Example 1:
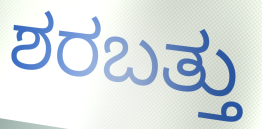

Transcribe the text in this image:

ಶರಬತ್ತು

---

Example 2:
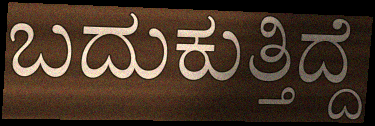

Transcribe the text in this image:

ಬದುಕುತ್ತಿದ್ದೆ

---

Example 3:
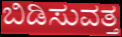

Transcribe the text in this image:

ಬಿಡಿಸುವತ್ತ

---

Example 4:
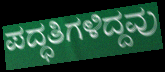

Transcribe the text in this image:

ಪದ್ಧತಿಗಳಿದ್ದವು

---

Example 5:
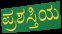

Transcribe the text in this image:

ಪ್ರಶಸ್ತಿಯ